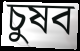
চুষব